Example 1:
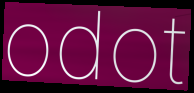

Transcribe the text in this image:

odot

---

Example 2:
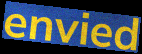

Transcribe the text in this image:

envied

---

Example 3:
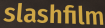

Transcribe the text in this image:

slashfilm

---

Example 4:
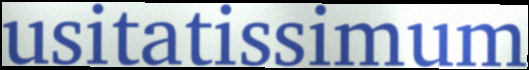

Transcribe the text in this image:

usitatissimum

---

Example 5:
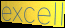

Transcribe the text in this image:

excell